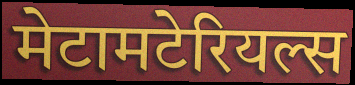
मेटामटेरियल्स